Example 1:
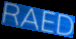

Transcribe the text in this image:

RAED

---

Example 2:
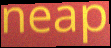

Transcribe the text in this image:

neap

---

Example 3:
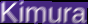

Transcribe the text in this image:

Kimura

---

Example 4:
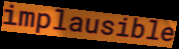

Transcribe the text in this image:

implausible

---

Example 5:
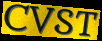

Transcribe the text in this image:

CVST